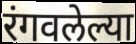
रंगवलेल्या